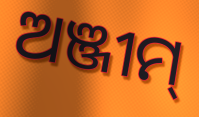
ଅଞ୍ଜୀମ୍